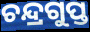
ଚନ୍ଦ୍ରଗୁପ୍ତ